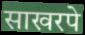
साखरपे